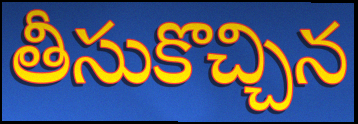
తీసుకొచ్చిన